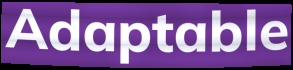
Adaptable